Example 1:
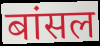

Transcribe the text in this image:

बांसल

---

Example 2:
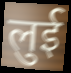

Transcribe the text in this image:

लुई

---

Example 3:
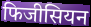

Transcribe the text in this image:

फिजीसियन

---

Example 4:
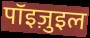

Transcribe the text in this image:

पॉइज़ुइल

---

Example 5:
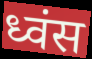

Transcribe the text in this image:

ध्वंस